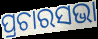
ପ୍ରଚାରସଭା